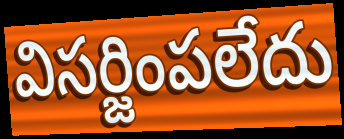
విసర్జింపలేదు